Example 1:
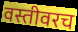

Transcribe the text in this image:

वस्तीवरच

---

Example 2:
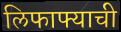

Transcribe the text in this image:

लिफाफ्याची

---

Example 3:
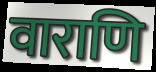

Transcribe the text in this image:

वाराणि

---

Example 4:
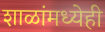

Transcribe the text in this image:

शाळांमध्येही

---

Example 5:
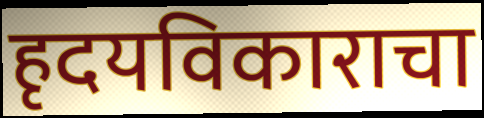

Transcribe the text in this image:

हृदयविकाराचा